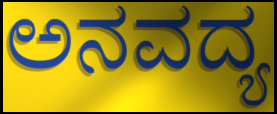
ಅನವದ್ಯ